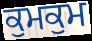
ਕੁਮਕੁਮ